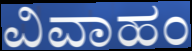
ವಿವಾಹಂ